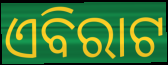
ଏବିରାଟ